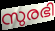
സുരഭി